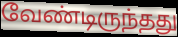
வேண்டிருந்தது